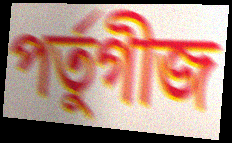
পৰ্তুগীজ